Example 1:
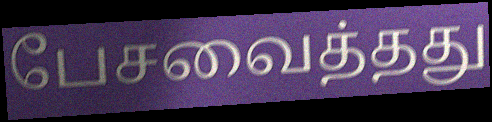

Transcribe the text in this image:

பேசவைத்தது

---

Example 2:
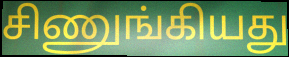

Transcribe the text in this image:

சிணுங்கியது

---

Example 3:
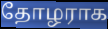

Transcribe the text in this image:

தோழராக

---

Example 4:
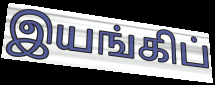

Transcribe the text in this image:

இயங்கிப்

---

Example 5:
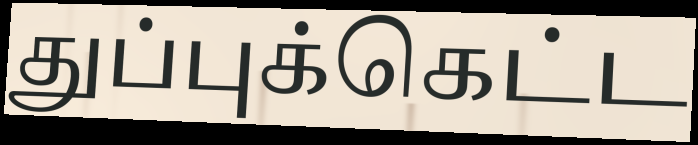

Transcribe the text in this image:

துப்புக்கெட்ட